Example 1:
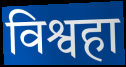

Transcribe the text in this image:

विश्वहा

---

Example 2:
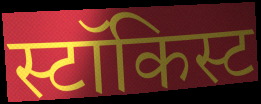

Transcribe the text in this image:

स्टॉकिस्ट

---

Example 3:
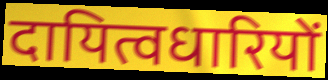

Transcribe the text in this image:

दायित्वधारियों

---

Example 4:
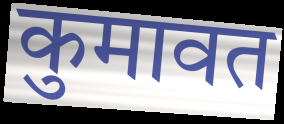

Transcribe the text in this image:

कुमावत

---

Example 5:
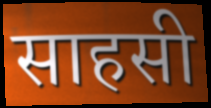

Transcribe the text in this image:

साहसी